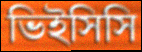
ভিইসিসি